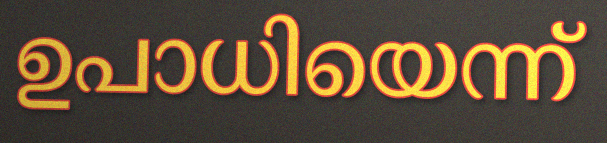
ഉപാധിയെന്ന്